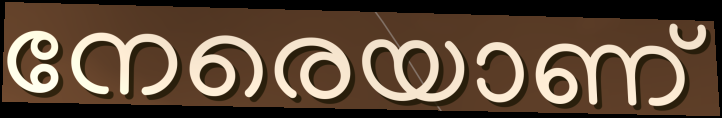
നേരെയാണ്